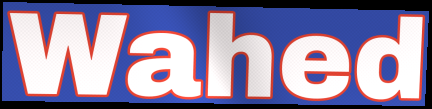
Wahed